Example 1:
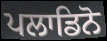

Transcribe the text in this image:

ਪਲਾਡਿਨੋ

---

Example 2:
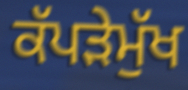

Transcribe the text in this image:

ਕੱਪੜੇਮੁੱਖ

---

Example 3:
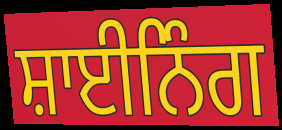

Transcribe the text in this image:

ਸ਼ਾਈਨਿੰਗ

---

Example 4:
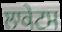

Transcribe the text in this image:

ਲਾਕੇਟਸ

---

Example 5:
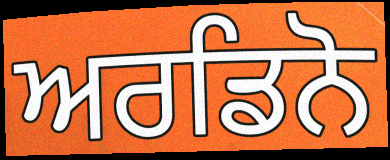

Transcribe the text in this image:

ਅਰਡਿਨੋ